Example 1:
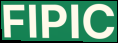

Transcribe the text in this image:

FIPIC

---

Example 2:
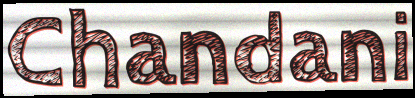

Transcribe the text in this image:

Chandani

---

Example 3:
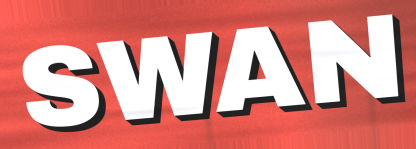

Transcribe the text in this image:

SWAN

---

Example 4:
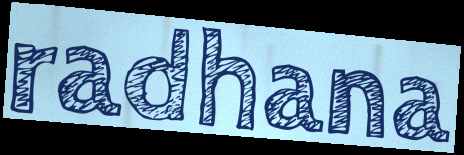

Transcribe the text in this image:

radhana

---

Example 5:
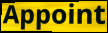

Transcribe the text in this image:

Appoint